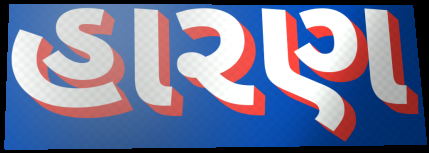
હારણ